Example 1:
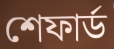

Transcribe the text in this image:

শেফার্ড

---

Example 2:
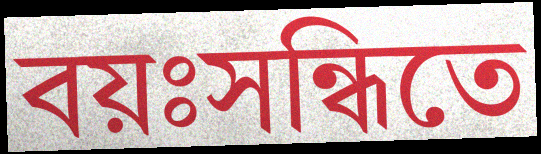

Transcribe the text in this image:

বয়ঃসন্ধিতে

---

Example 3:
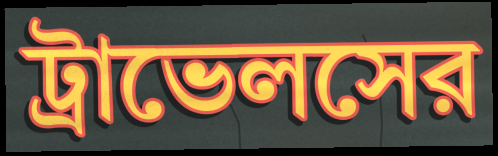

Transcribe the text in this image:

ট্রাভেলসের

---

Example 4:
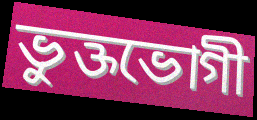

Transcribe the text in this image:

ভুক্তভোগী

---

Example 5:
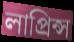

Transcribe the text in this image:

লাপ্রিন্স